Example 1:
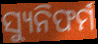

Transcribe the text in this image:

ସ୍ୟୁନିଫର୍ମ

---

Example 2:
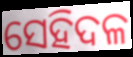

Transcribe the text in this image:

ସେହିଦଳ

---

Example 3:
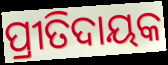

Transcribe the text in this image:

ପ୍ରୀତିଦାୟକ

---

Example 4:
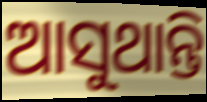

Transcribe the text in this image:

ଆସୁଥାନ୍ତି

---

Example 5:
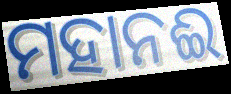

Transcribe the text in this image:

ମହାନଈ